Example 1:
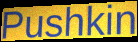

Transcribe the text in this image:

Pushkin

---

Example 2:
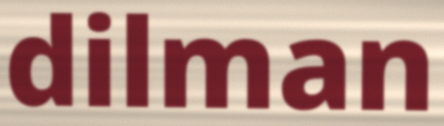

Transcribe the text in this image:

dilman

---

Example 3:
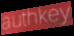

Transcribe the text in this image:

authkey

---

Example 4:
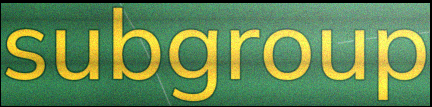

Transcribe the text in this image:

subgroup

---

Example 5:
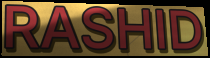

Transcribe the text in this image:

RASHID